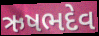
ઋષભદેવ